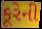
કૂરેની